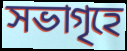
সভাগৃহে